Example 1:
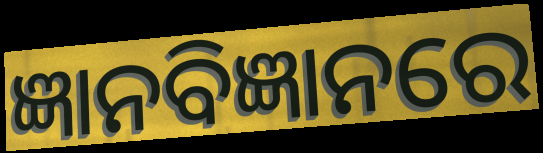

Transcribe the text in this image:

ଜ୍ଞାନବିଜ୍ଞାନରେ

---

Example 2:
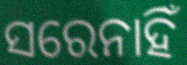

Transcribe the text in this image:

ସରେନାହିଁ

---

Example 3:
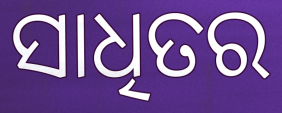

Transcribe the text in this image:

ସାଧିତର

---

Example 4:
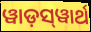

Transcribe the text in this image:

ୱାଡ଼ସ୍‌ୱାର୍ଥ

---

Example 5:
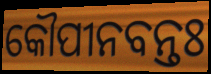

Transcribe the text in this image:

କୌପୀନବନ୍ତଃ